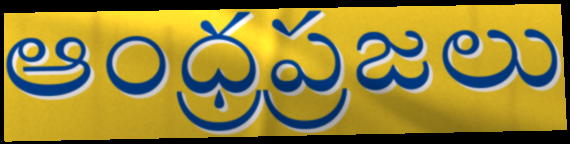
ఆంధ్రప్రజలు